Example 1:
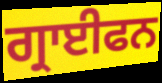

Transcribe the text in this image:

ਗ੍ਰਾਈਫਨ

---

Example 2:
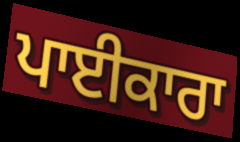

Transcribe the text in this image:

ਪਾਈਕਾਰਾ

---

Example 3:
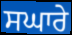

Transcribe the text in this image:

ਸਘਾਰੇ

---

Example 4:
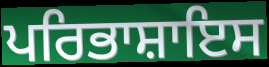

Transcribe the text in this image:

ਪਰਿਭਾਸ਼ਾਇਸ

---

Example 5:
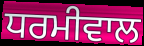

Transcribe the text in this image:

ਧਰਮੀਵਾਲ